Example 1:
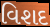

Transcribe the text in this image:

વિશદ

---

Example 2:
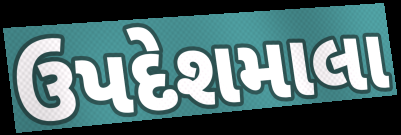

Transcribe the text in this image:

ઉપદેશમાલા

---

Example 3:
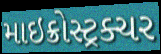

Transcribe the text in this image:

માઇક્રોસ્ટ્રક્ચર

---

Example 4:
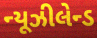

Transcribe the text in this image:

ન્યૂઝીલેન્ડ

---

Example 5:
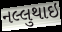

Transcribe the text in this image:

નલ્લુથાઇ